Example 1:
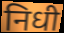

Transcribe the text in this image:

निधी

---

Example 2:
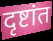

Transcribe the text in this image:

दृष्टांत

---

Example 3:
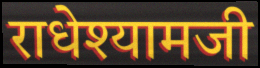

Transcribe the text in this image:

राधेश्यामजी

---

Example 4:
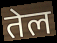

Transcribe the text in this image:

तेल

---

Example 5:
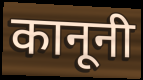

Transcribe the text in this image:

कानूनी